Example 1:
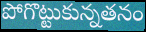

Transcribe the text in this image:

పోగొట్టుకున్నతనం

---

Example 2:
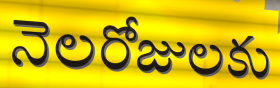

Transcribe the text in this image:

నెలరోజులకు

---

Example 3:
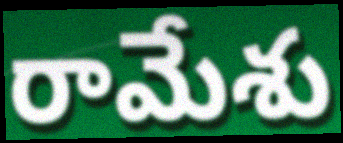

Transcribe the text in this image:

రామేశు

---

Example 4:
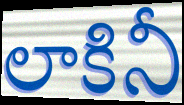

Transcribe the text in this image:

లాకినీ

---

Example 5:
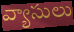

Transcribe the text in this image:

వ్యాసులు